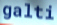
galti